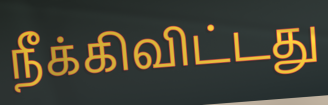
நீக்கிவிட்டது